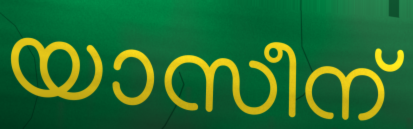
യാസീന്